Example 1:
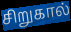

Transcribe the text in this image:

சிறுகால்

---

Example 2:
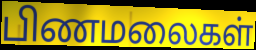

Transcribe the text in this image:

பிணமலைகள்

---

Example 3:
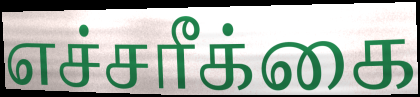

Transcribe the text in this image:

எச்சரீக்கை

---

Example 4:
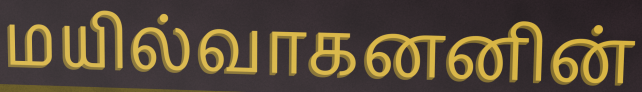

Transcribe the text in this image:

மயில்வாகனனின்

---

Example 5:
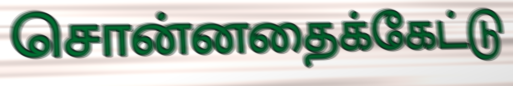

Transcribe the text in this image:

சொன்னதைக்கேட்டு